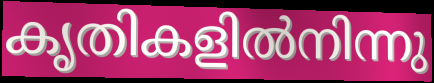
കൃതികളിൽനിന്നു